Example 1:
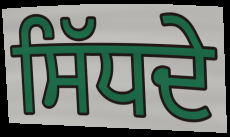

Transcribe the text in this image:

ਸਿੱਧਦੇ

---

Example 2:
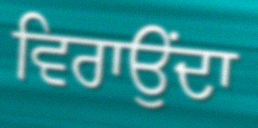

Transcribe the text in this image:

ਵਿਰਾਉਂਦਾ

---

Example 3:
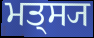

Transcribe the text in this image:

ਮਤ੍ਸ੍ਯ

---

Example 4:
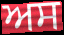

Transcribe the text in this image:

ਅਸ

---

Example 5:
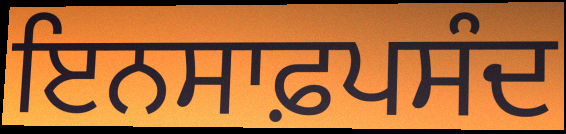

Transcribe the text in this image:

ਇਨਸਾਫ਼ਪਸੰਦ